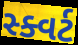
સ્ક્વર્ટ